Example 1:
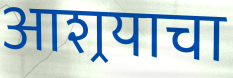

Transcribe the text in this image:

आश्रयाचा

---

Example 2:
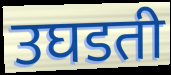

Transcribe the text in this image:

उघडती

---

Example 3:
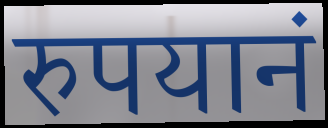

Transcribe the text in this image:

रुपयानं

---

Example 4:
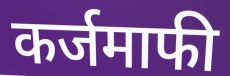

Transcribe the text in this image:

कर्जमाफी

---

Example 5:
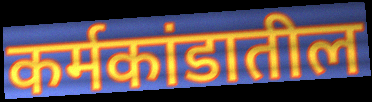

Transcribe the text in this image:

कर्मकांडातील